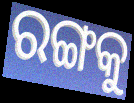
ରଙ୍ଗକୁ